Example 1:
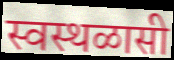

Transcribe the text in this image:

स्वस्थळासी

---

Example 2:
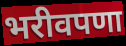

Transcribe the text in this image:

भरीवपणा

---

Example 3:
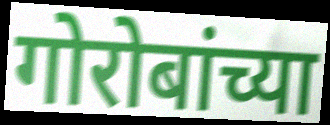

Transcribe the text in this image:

गोरोबांच्या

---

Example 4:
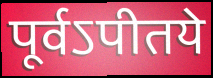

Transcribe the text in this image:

पूर्वऽपीतये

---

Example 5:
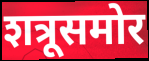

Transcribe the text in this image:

शत्रूसमोर